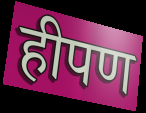
हीपण